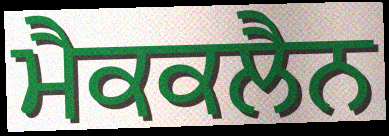
ਮੈਕਕਲੈਨ